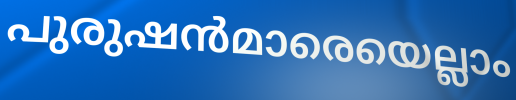
പുരുഷൻമാരെയെല്ലാം